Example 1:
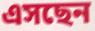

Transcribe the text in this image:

এসছেন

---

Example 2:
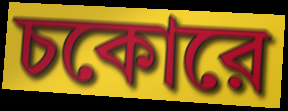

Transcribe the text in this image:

চকোরে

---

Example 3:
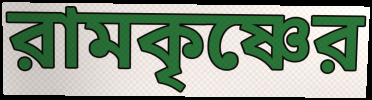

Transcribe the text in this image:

রামকৃষ্ণের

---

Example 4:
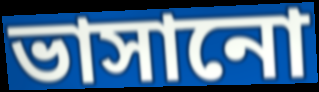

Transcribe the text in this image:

ভাসানো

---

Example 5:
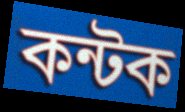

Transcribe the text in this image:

কন্টক